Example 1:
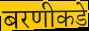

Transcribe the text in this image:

बरणीकडे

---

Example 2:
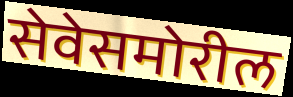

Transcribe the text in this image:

सेवेसमोरील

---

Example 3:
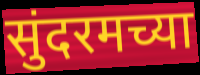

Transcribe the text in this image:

सुंदरमच्या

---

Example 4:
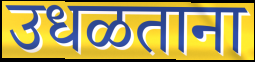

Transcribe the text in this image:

उधळताना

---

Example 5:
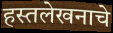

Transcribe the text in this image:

हस्तलेखनाचे